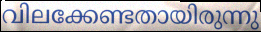
വിലക്കേണ്ടതായിരുന്നു